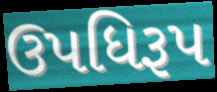
ઉપધિરૂપ